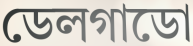
ডেলগাডো